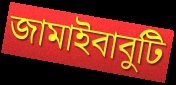
জামাইবাবুটি